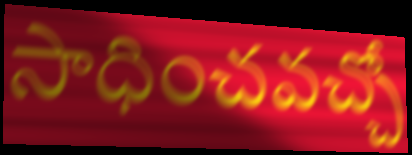
సాధించవచ్చో